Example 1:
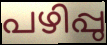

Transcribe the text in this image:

പഴിപ്പു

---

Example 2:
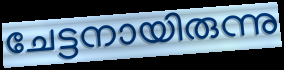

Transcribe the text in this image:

ചേട്ടനായിരുന്നു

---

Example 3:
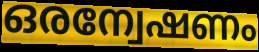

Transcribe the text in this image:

ഒരന്വേഷണം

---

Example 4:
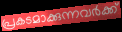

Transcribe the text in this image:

പ്രകടമാക്കുന്നവർക്ക്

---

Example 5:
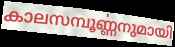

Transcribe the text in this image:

കാലസമ്പൂൎണ്ണനുമായി